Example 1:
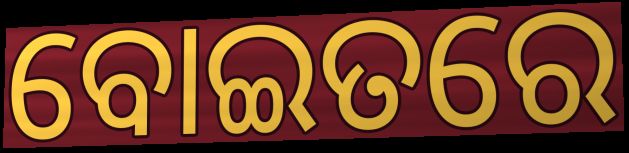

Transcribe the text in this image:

ବୋଇତରେ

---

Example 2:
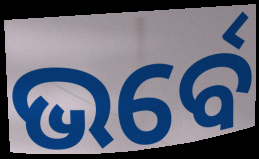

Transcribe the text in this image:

ଭର୍ବେ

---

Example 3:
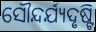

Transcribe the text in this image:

ସୌନ୍ଦର୍ଯ୍ୟଦୃଷ୍ଟି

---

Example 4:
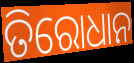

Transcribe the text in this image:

ତିରୋଧାନ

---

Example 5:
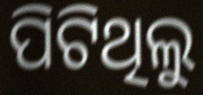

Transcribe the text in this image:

ପିଟିଥିଲୁ